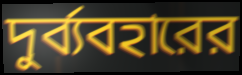
দুর্ব্যবহারের